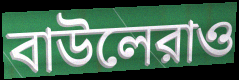
বাউলেরাও